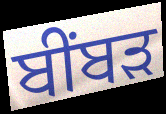
ਬੀਂਬੜ